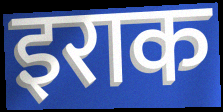
इराक